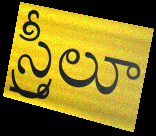
స్ర్తీలూ